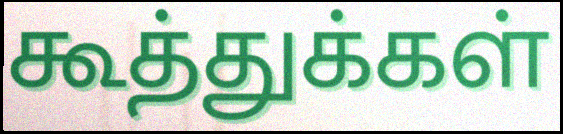
கூத்துக்கள்